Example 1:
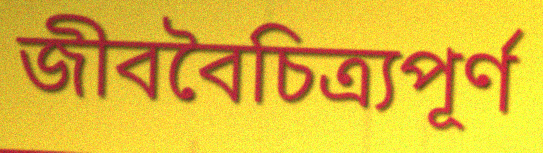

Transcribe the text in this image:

জীববৈচিত্র্যপূর্ণ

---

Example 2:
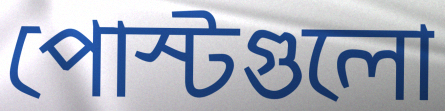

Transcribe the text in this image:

পোস্টগুলো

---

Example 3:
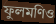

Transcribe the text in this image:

ফুলমণিও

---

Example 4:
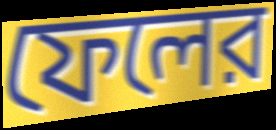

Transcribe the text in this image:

ফেলের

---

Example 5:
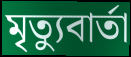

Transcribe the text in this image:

মৃত্যুবার্তা